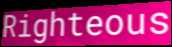
Righteous